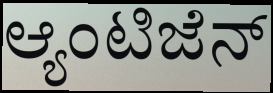
ಆ್ಯಂಟಿಜೆನ್